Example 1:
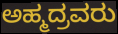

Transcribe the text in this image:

ಅಹ್ಮದ್ರವರು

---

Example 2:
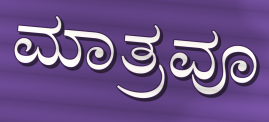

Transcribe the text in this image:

ಮಾತ್ರವೂ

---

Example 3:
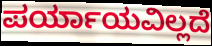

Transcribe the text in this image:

ಪರ್ಯಾಯವಿಲ್ಲದೆ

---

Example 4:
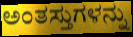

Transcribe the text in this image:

ಅಂತಸ್ತುಗಳನ್ನು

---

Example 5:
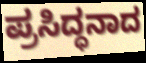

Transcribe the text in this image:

ಪ್ರಸಿದ್ಧನಾದ